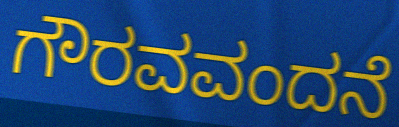
ಗೌರವವಂದನೆ